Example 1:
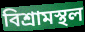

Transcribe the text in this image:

বিশ্রামস্থল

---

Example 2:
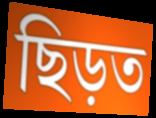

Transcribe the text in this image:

ছিড়ত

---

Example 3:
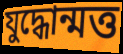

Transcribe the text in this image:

যুদ্ধোন্মত্ত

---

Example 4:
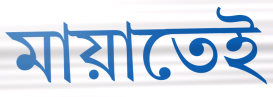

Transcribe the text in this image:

মায়াতেই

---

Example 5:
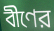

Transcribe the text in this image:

বীণের